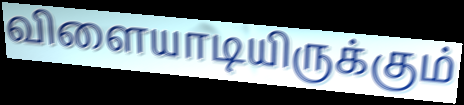
விளையாடியிருக்கும்